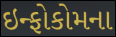
ઇન્ફોકોમના